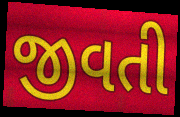
જીવતી